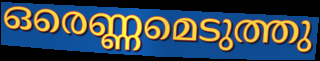
ഒരെണ്ണമെടുത്തു